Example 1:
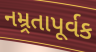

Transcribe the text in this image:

નમ્ર્રતાપૂર્વક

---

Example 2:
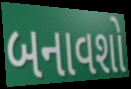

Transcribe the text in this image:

બનાવશો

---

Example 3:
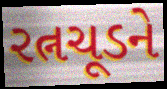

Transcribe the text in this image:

રત્નચૂડને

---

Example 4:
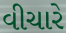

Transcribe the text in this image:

વીચારે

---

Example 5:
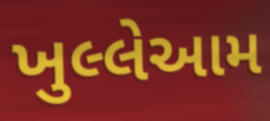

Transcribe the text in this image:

ખુલ્લેઆમ